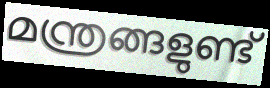
മന്ത്രങ്ങളുണ്ട്